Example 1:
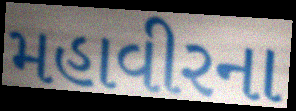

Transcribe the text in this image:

મહાવીરના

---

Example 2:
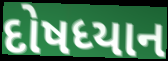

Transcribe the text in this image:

દોષધ્યાન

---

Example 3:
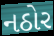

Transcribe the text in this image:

નઠોર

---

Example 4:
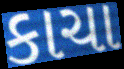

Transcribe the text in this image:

કાચા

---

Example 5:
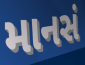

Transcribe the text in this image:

માનસં